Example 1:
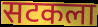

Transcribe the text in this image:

सटकला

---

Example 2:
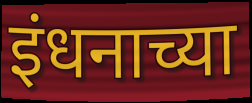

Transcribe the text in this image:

इंधनाच्या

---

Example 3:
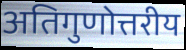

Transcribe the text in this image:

अतिगुणोत्तरीय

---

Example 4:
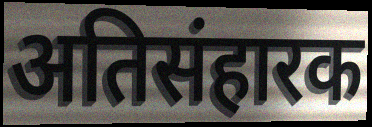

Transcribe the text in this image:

अतिसंहारक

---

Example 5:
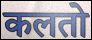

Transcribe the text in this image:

कलतो